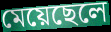
মেয়েছেলে